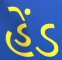
હેંડ